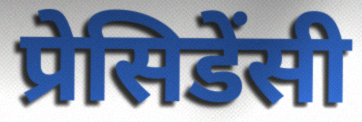
प्रेसिडेंसी